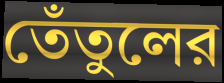
তেঁতুলের